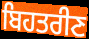
ਬਿਹਤਰੀਣ